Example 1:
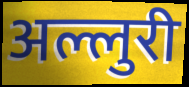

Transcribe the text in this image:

अल्लुरी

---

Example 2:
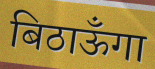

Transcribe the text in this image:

बिठाऊँगा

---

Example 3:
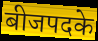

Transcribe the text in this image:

बीजपदके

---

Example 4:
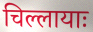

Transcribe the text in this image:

चिल्लायाः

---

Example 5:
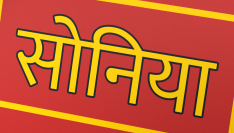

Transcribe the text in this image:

सोनिया